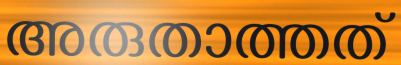
അരുതാത്തത്